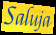
Saluja